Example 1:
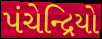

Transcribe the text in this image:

પંચેન્દ્રિયો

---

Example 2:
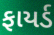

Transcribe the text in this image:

ફાયર્ડ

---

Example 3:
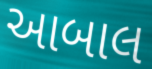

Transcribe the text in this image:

આબાલ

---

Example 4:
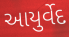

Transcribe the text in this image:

આયુર્વેદ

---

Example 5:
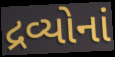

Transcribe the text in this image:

દ્રવ્યોનાં